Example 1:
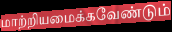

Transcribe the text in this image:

மாற்றியமைக்கவேண்டும்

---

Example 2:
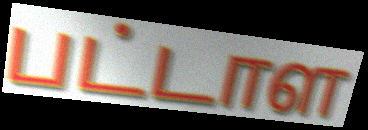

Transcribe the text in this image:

பட்டாள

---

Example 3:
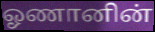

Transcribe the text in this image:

ஓணானின்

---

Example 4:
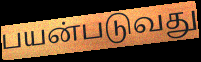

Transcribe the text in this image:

பயன்படுவது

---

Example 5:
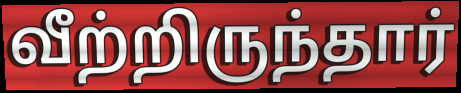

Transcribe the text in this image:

வீற்றிருந்தார்